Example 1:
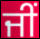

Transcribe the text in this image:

ਜੀਂ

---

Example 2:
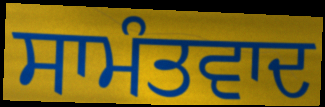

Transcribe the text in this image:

ਸਾਮੰਤਵਾਦ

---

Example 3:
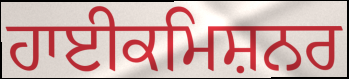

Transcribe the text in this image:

ਹਾਈਕਮਿਸ਼ਨਰ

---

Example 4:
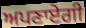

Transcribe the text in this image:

ਅਪਣਾਏਗੀ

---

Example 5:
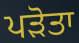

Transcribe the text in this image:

ਪੜੋਤਾ